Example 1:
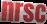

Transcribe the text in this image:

nrsc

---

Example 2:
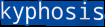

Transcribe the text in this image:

kyphosis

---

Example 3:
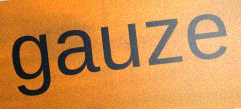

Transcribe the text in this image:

gauze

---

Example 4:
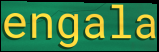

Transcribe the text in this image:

engala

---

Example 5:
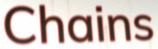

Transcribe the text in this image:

Chains